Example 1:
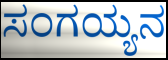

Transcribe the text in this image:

ಸಂಗಯ್ಯನ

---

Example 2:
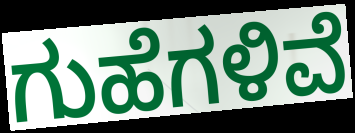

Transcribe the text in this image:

ಗುಹೆಗಳಿವೆ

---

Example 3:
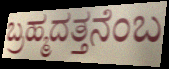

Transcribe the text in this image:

ಬ್ರಹ್ಮದತ್ತನೆಂಬ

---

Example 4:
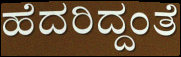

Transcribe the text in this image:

ಹೆದರಿದ್ದಂತೆ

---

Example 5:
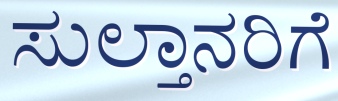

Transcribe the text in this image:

ಸುಲ್ತಾನರಿಗೆ